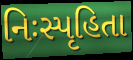
નિઃસ્પૃહિતા